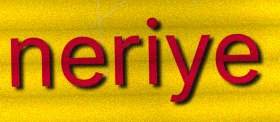
neriye